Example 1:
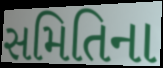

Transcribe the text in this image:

સમિતિના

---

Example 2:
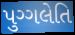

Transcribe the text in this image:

પુગ્ગલેતિ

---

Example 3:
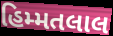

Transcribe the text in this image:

હિમ્મતલાલ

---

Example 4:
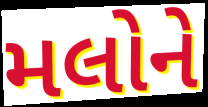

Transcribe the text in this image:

મલોને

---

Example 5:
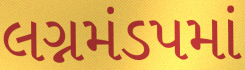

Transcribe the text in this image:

લગ્નમંડપમાં